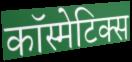
कॉस्मेटिक्स